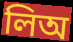
লিঅ